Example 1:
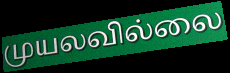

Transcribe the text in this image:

முயலவில்லை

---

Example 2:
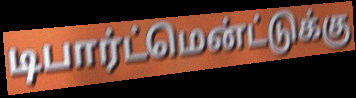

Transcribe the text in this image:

டிபார்ட்மென்ட்டுக்கு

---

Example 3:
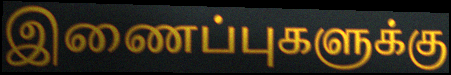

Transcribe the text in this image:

இணைப்புகளுக்கு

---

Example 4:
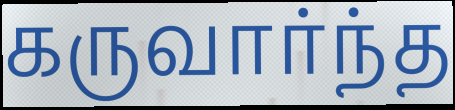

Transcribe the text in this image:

கருவார்ந்த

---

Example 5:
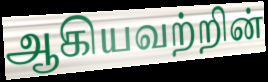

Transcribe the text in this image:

ஆகியவற்றின்